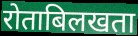
रोताबिलखता